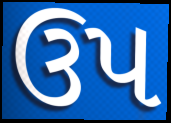
ઉપ